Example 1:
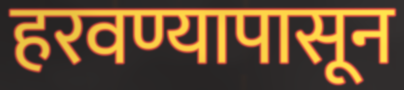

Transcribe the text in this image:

हरवण्यापासून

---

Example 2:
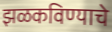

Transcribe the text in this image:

झळकविण्याचे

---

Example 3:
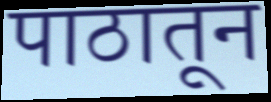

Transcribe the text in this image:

पाठातून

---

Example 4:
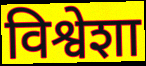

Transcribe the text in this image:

विश्वेशा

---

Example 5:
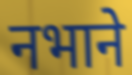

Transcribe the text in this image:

नभाने